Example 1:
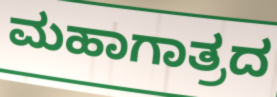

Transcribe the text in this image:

ಮಹಾಗಾತ್ರದ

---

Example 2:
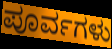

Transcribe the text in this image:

ಪೂರ್ವಗಳು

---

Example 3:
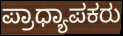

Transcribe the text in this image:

ಪ್ರಾಧ್ಯಾಪಕರು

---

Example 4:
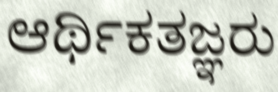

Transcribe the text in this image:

ಆರ್ಥಿಕತಜ್ಞರು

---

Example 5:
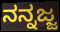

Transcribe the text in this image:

ನನ್ನಜ್ಜ